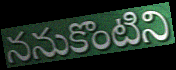
ననుకొంటిని